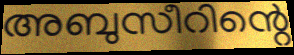
അബുസീറിന്റെ